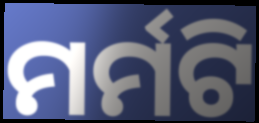
ମର୍ମଟି